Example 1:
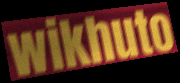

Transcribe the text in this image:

wikhuto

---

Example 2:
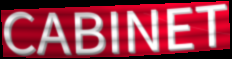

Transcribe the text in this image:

CABINET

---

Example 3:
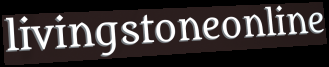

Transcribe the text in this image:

livingstoneonline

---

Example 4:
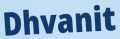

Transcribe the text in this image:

Dhvanit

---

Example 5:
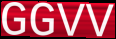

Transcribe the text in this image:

GGVV